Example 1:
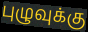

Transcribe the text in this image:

புழுவுக்கு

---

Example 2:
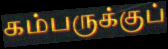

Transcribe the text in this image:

கம்பருக்குப்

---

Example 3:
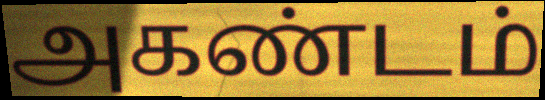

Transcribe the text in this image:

அகண்டம்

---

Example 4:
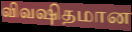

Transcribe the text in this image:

விவஷிதமான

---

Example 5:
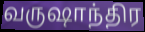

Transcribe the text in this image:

வருஷாந்திர